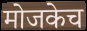
मोजकेच